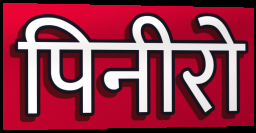
पिनीरो